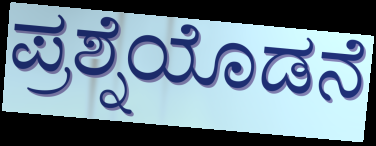
ಪ್ರಶ್ನೆಯೊಡನೆ